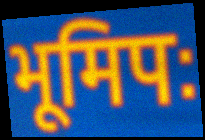
भूमिपः